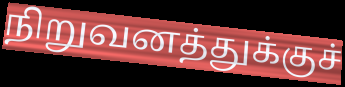
நிறுவனத்துக்குச்